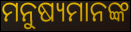
ମନୁଷ୍ୟମାନଙ୍କ